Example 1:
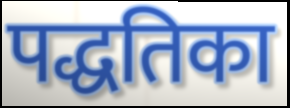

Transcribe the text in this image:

पद्धतिका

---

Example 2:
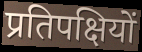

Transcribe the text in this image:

प्रतिपक्षियों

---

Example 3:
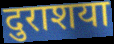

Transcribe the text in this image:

दुराशया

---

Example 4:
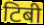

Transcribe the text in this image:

टिबी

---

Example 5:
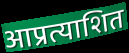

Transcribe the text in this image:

आप्रत्याशित